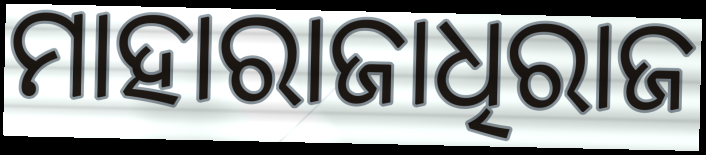
ମାହାରାଜାଧିରାଜ